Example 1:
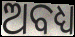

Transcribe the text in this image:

ଅବଧ୍ୟ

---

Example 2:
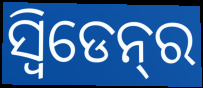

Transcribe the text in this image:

ସ୍ୱିଡେନ୍‍ର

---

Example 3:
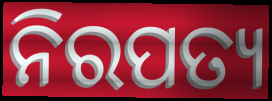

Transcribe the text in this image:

ନିରପତ୍ୟ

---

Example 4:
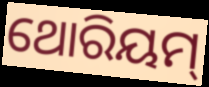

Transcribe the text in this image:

ଥୋରିୟମ୍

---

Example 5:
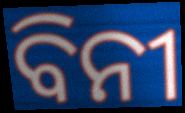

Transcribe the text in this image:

ବିନୀ